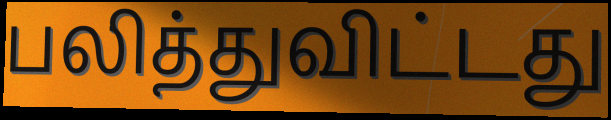
பலித்துவிட்டது